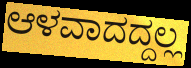
ಆಳವಾದದ್ದಲ್ಲ